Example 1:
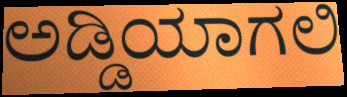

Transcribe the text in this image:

ಅಡ್ಡಿಯಾಗಲಿ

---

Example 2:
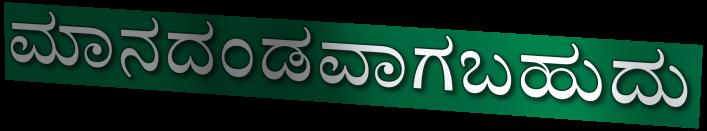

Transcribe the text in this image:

ಮಾನದಂಡವಾಗಬಹುದು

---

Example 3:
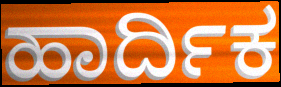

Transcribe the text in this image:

ಹಾರ್ದಿಕ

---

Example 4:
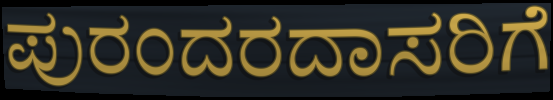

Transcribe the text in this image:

ಪುರಂದರದಾಸರಿಗೆ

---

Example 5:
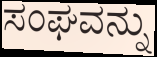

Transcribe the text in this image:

ಸಂಘವನ್ನು